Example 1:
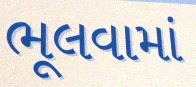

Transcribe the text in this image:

ભૂલવામાં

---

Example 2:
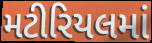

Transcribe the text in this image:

મટીરિયલમાં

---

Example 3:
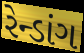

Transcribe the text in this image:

રેન્ડાંગ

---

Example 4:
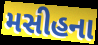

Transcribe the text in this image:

મસીહના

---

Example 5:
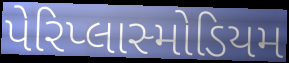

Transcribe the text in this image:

પેરિપ્લાસ્મોડિયમ